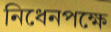
নিধেনপক্ষে